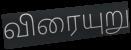
விரையுறு